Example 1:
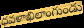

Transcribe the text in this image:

ధవళాఖిలాంగుండు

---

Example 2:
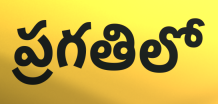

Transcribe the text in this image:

ప్రగతిలో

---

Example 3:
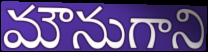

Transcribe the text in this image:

మౌనుగాని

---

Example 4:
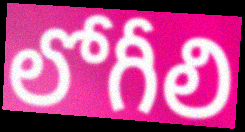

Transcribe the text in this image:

లోగీలి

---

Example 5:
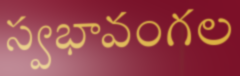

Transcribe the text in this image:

స్వభావంగల